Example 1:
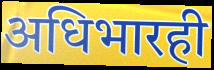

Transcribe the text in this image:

अधिभारही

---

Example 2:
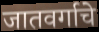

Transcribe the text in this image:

जातवर्गाचे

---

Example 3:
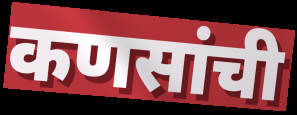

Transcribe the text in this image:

कणसांची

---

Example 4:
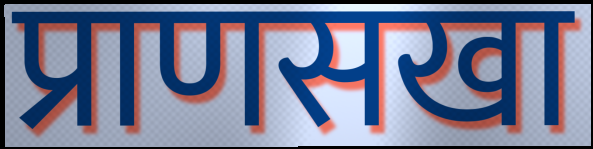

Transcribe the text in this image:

प्राणसखा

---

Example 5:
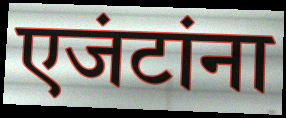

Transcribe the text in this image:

एजंटांना